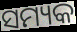
ସମ୍ୟକ